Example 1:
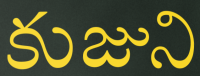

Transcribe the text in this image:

కుజుని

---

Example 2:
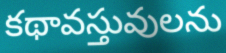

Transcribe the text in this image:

కథావస్తువులను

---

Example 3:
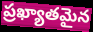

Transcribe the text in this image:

ప్రఖ్యాతమైన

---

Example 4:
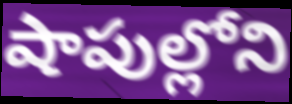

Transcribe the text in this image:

షాపుల్లోని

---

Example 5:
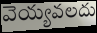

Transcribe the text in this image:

వెయ్యవలదు